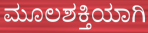
ಮೂಲಶಕ್ತಿಯಾಗಿ